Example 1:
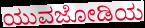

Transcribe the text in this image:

ಯುವಜೋಡಿಯ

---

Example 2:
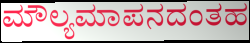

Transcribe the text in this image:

ಮೌಲ್ಯಮಾಪನದಂತಹ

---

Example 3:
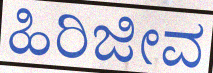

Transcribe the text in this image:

ಹಿರಿಜೀವ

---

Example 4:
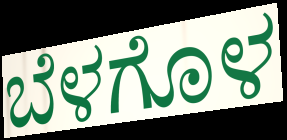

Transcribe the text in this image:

ಬೆಳಗೊಳ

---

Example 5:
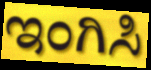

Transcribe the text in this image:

ಇಂಗಿಸಿ